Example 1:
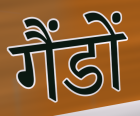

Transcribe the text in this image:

गैंडों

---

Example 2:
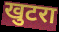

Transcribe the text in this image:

खुटरा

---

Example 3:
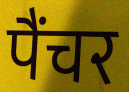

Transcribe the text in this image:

पैंचर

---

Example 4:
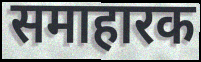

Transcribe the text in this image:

समाहारक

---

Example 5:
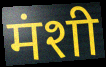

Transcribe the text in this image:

मंशी